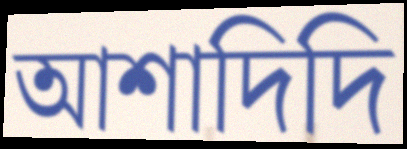
আশাদিদি